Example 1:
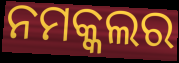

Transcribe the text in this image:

ନମକ୍କଲର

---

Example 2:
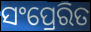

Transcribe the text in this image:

ସଂପ୍ରେରିତ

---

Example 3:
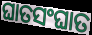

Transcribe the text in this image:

ଘାତସଂଘାତ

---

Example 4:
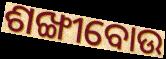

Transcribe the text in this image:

ଶଙ୍ଖୀବୋଉ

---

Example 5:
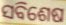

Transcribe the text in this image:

ସବିଶେଷ